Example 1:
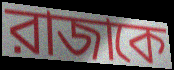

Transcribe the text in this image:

রাজাকে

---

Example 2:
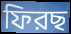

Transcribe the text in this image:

ফিরছ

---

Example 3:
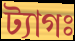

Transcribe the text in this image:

ট্যাগঃ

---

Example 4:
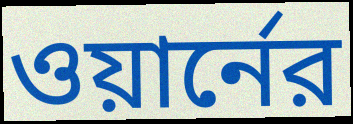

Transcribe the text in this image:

ওয়ার্নের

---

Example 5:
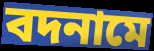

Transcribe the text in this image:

বদনামে